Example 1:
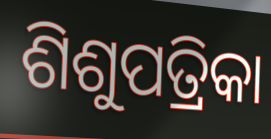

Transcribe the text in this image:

ଶିଶୁପତ୍ରିକା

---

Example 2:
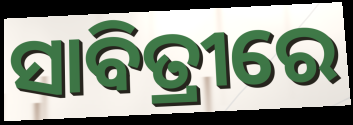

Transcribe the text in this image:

ସାବିତ୍ରୀରେ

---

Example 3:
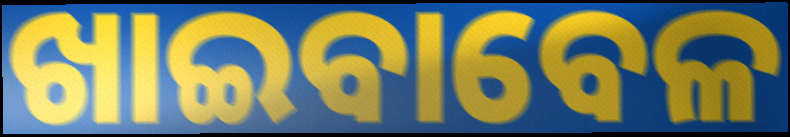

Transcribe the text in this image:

ଖାଇବାବେଳ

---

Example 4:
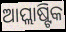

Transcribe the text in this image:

ଆପ୍ଲାଷ୍ଟିକ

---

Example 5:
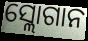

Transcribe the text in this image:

ସ୍ଲୋଗାନ